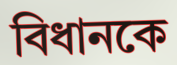
বিধানকে